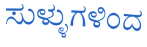
ಸುಳ್ಳುಗಳಿಂದ